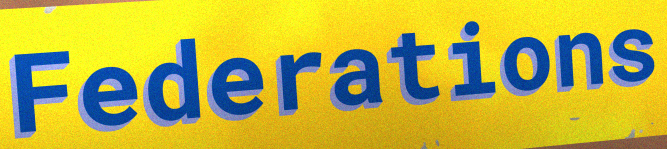
Federations